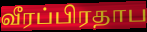
வீரப்பிரதாப